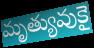
మృత్యువుకై